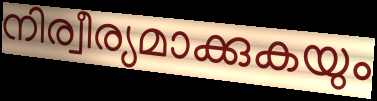
നിര്വീര്യമാക്കുകയും